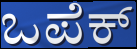
ಒಪೆಕ್